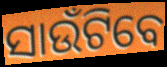
ସାଉଁଟିବେ